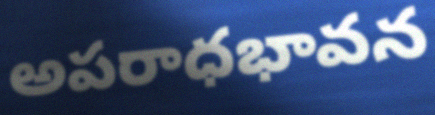
అపరాధభావన